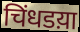
चिंधडय़ा